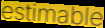
estimable